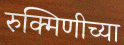
रुक्मिणीच्या